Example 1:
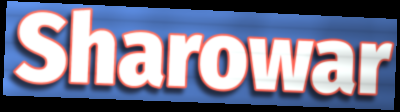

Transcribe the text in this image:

Sharowar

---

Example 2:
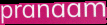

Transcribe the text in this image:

pranaam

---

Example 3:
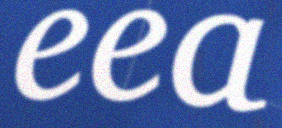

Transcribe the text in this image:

eea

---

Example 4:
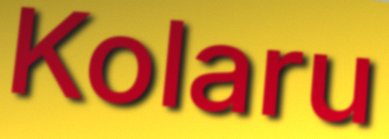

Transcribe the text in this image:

Kolaru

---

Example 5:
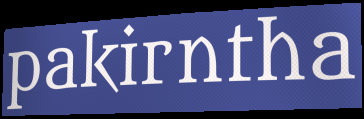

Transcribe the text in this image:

pakirntha